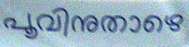
പൂവിനുതാഴെ